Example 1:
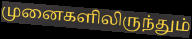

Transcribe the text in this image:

முனைகளிலிருந்தும்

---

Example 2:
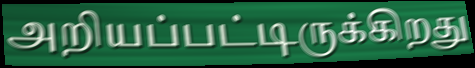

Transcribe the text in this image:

அறியப்பட்டிருக்கிறது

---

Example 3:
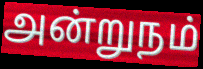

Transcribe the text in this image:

அன்றுநம்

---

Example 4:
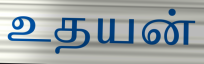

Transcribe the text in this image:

உதயன்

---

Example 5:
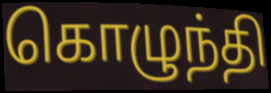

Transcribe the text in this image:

கொழுந்தி